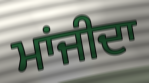
ਮਾਂਜੀਦਾ